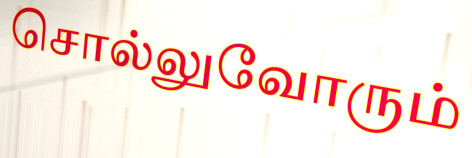
சொல்லுவோரும்